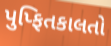
પુપ્ફિતકાલતો